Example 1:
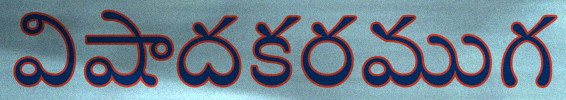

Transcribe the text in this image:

విషాదకరముగ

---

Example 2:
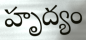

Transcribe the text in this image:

హృద్యం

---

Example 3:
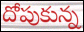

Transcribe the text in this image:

దోపుకున్న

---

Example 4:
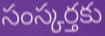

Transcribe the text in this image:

సంస్కర్తకు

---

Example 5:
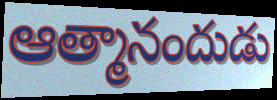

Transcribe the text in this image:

ఆత్మానందుడు